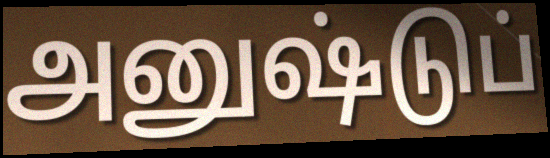
அனுஷ்டுப்